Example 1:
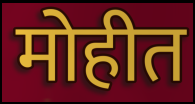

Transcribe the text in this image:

मोहीत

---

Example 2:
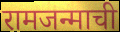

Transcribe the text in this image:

रामजन्माची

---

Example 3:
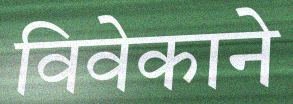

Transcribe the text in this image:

विवेकाने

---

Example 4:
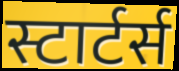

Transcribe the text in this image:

स्टार्टर्स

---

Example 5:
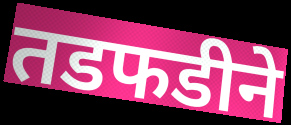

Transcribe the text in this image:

तडफडीने